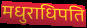
मधुराधिपति